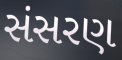
સંસરણ